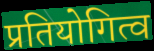
प्रतियोगित्व